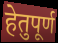
हेतुपूर्ण